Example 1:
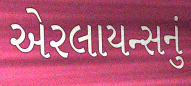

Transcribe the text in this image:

એરલાયન્સનું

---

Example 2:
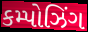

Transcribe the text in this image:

કમ્પોઝિંગ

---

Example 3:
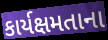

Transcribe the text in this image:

કાર્યક્ષમતાના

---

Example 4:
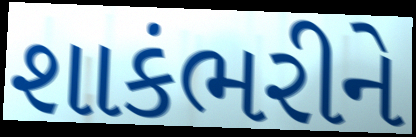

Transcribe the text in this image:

શાકંભરીને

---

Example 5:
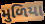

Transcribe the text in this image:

મુળિયા